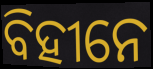
ବିହୀନେ